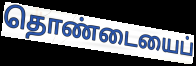
தொண்டையைப்